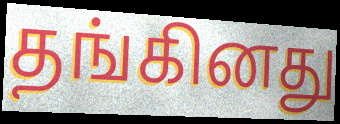
தங்கினது